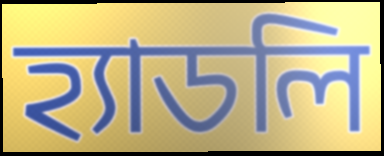
হ্যাডলি